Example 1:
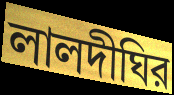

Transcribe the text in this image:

লালদীঘির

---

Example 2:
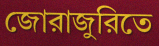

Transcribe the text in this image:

জোরাজুরিতে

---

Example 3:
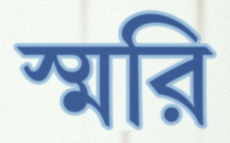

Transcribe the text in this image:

স্মরি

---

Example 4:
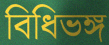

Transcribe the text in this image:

বিধিভঙ্গ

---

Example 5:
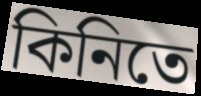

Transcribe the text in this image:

কিনিতে